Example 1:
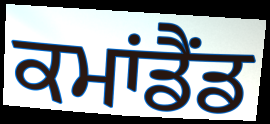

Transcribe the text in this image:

ਕਮਾਂਡੈਂਡ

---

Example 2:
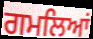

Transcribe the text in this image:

ਗਮਲਿਆਂ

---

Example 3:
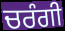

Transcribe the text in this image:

ਚਰੰਗੀ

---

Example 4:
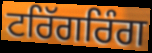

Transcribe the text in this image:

ਟਰਿੱਗਰਿੰਗ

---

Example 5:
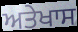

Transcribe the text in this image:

ਅਤੇਖਾਸ